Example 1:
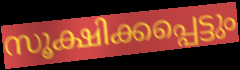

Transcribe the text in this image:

സൂക്ഷിക്കപ്പെട്ടും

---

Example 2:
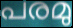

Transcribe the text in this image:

പരമു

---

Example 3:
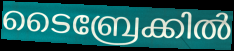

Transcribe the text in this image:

ടൈബ്രേക്കിൽ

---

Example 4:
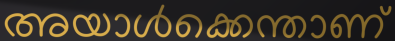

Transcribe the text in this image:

അയാൾക്കെന്താണ്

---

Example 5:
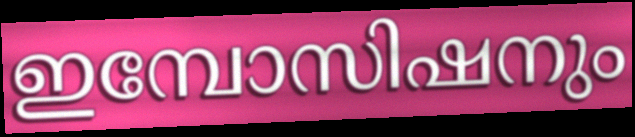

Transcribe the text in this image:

ഇമ്പോസിഷനും